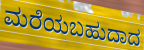
ಮರೆಯಬಹುದಾದ